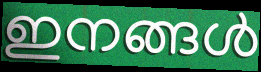
ഇനങ്ങൾ